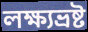
লক্ষ্যভ্রষ্ট